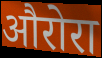
औरोरा